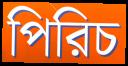
পিরিচ